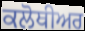
ਕਲੋਥੀਅਰ